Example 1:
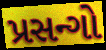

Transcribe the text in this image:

પ્રસન્ગો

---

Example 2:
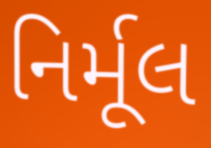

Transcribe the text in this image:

નિર્મૂલ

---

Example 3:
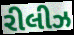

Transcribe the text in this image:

રીલીઝ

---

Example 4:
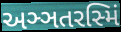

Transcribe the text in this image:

અઞ્ઞતરસ્મિં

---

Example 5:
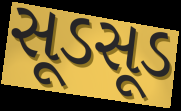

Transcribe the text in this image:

સૂડસૂડ